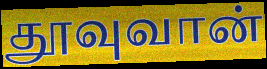
தூவுவான்